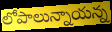
లోపాలున్నాయన్న